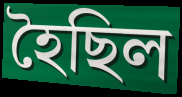
হৈছিল